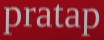
pratap